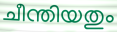
ചീന്തിയതും